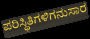
ಪರಿಸ್ಥಿತಿಗಳಿಗನುಸಾರ